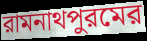
রামনাথপুরমের